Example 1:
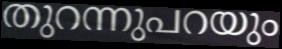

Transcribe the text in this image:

തുറന്നുപറയും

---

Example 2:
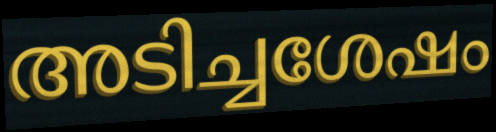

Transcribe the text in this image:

അടിച്ചശേഷം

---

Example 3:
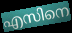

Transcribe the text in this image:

എസിനെ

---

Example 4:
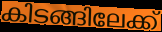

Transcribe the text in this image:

കിടങ്ങിലേക്ക്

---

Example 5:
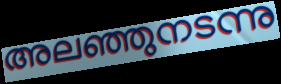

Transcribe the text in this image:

അലഞ്ഞുനടന്നു